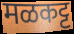
मळकट्ट